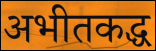
अभीतकद्ध